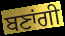
ਬਣਾਂਗੀ